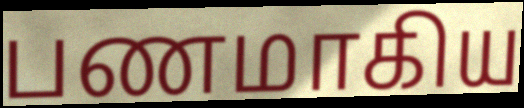
பணமாகிய